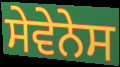
ਸੇਵੇਨੇਸ